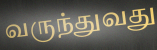
வருந்துவது